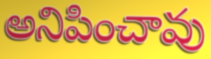
అనిపించావు